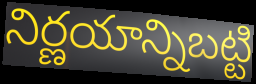
నిర్ణయాన్నిబట్టి